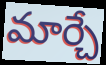
మార్చే